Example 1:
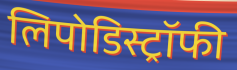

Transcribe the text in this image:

लिपोडिस्ट्रॉफी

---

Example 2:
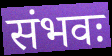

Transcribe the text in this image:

संभवः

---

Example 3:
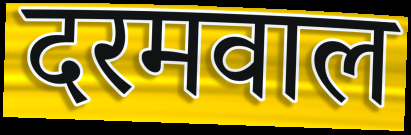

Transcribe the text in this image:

दरमवाल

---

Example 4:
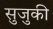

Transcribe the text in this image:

सुजुकी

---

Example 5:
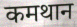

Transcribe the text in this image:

कमथान